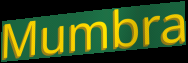
Mumbra